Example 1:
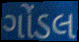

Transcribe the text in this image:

ગોંડલ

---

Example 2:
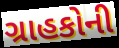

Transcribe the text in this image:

ગ્રાહકોની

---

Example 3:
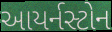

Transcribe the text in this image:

આયર્નસ્ટોન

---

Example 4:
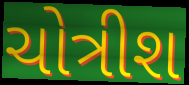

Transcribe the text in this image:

ચોત્રીશ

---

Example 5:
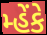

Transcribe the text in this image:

મ્હેંકે